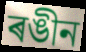
ৰঙীন